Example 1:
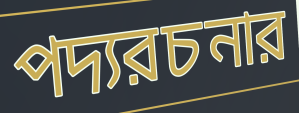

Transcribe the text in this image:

পদ্যরচনার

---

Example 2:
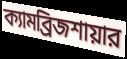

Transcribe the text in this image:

ক্যামব্রিজশায়ার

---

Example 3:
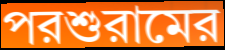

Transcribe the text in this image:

পরশুরামের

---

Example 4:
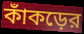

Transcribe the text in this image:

কাঁকড়ের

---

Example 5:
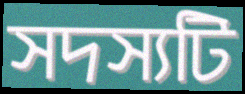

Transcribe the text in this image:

সদস্যটি